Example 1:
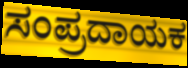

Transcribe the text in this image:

ಸಂಪ್ರದಾಯಕ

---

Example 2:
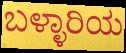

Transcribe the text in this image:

ಬಳ್ಳಾರಿಯ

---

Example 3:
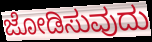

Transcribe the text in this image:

ಜೋಡಿಸುವುದು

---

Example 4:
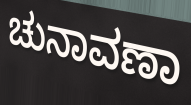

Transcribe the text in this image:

ಚುನಾವಣಾ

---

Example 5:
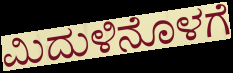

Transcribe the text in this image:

ಮಿದುಳಿನೊಳಗೆ